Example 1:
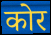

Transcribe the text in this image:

कोर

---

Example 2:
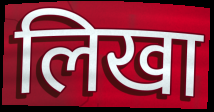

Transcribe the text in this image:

लिखा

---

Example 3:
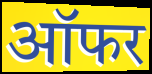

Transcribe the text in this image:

ऑफर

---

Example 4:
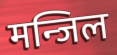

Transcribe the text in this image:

मन्जिल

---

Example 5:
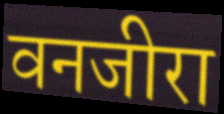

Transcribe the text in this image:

वनजीरा